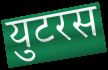
युटरस